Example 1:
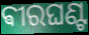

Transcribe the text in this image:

ଵୀରଘଣ୍ଟ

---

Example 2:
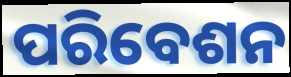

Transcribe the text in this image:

ପରିବେଶନ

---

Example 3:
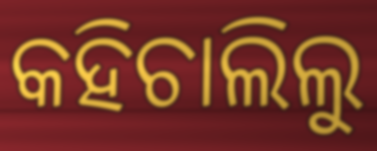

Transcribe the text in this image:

କହିଚାଲିଲୁ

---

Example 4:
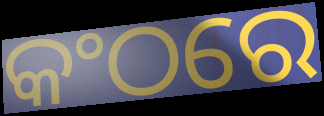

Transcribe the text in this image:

କଂଠରେ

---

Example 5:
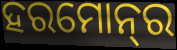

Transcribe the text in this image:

ହରମୋନ୍‍ର